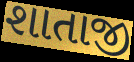
શાતાજી